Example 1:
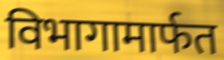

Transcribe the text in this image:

विभागामार्फत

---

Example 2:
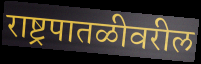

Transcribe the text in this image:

राष्ट्रपातळीवरील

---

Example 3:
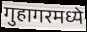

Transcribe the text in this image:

गुहागरमध्ये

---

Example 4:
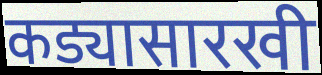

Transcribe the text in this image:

कड्यासारखी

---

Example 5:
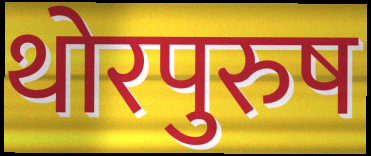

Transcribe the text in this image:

थोरपुरुष